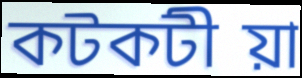
কটকটীয়া